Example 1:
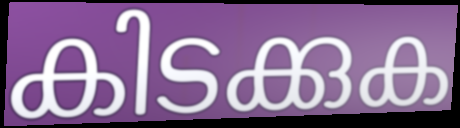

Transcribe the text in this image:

കിടക്കുക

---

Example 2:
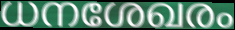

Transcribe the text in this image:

ധനശേഖരം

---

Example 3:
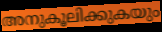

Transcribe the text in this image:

അനുകൂലിക്കുകയും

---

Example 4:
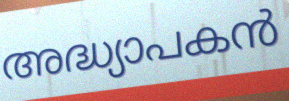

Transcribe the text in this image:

അദ്ധ്യാപകൻ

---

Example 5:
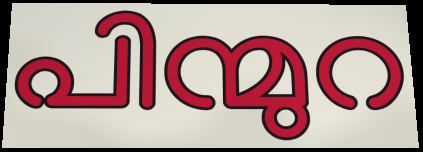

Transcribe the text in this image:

പിന്മുറ